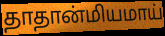
தாதான்மியமாய்